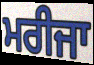
ਮਰੀਜਾ